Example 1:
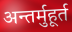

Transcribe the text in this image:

अन्तर्मुहूर्त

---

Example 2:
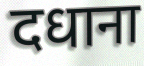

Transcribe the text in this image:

दधाना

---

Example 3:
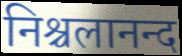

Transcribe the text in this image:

निश्चलानन्द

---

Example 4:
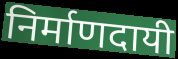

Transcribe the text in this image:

निर्माणदायी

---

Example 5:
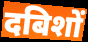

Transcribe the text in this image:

दबिशों